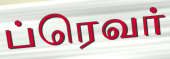
ப்ரெவர்